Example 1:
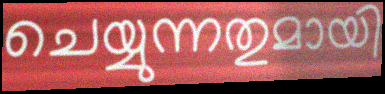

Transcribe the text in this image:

ചെയ്യുന്നതുമായി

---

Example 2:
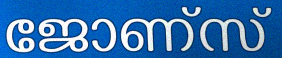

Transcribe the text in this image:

ജോണ്സ്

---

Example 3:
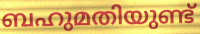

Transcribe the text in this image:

ബഹുമതിയുണ്ട്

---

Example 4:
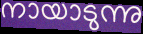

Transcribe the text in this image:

നായാടുന്നു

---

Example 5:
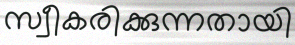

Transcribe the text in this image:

സ്വീകരിക്കുന്നതായി